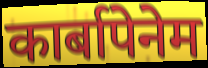
कार्बापेनेम